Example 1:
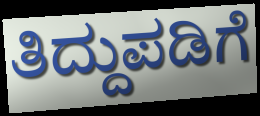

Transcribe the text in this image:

ತಿದ್ದುಪಡಿಗೆ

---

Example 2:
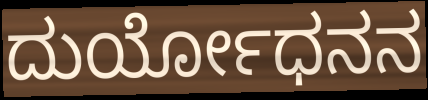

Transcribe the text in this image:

ದುರ್ಯೋಧನನ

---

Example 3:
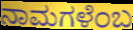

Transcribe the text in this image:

ನಾಮಗಳೆಂಬ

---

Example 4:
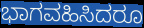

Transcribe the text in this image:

ಭಾಗವಹಿಸಿದರೂ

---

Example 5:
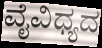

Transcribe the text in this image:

ವೈವಿಧ್ಯದ